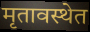
मृतावस्थेत